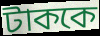
টাককে